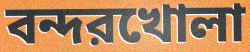
বন্দরখোলা